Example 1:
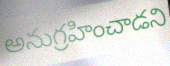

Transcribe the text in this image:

అనుగ్రహించాడని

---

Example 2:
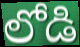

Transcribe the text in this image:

లోడి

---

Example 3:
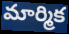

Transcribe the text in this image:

మార్మిక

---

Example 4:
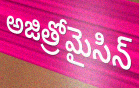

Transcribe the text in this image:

అజిత్రోమైసిన్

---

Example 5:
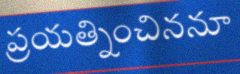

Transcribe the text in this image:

ప్రయత్నించిననూ